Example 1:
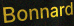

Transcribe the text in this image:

Bonnard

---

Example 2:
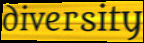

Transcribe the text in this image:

diversity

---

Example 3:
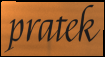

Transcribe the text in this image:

pratek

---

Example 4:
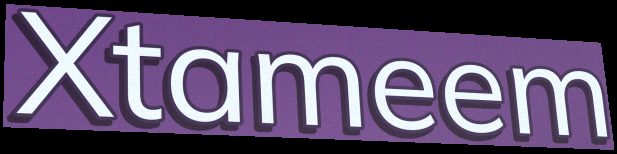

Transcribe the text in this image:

Xtameem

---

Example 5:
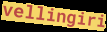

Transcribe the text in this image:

vellingiri